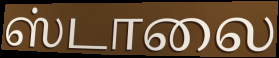
ஸ்டாலை